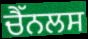
ਚੈੱਨਲਸ